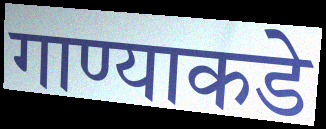
गाण्याकडे